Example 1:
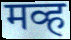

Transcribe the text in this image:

मव्ह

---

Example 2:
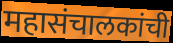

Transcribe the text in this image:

महासंचालकांची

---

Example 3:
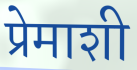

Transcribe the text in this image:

प्रेमाशी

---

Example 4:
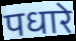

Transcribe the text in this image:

पधारे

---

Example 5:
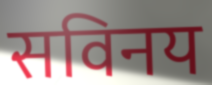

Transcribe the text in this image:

सविनय